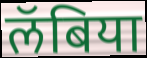
लॅबिया